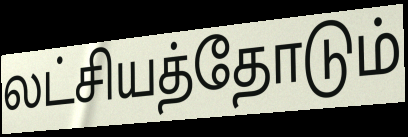
லட்சியத்தோடும்